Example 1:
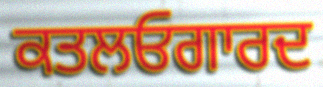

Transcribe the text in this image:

ਕਤਲਓਗਾਰਦ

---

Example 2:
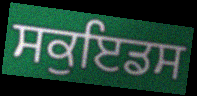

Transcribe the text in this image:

ਸਕੁਇਡਸ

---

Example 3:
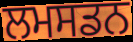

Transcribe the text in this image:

ਲਮਸਡਨ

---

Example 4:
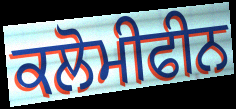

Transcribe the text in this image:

ਕਲੋਮੀਫੀਨ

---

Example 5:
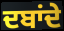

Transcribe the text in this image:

ਦਬਾਂਦੇ